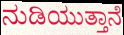
ನುಡಿಯುತ್ತಾನೆ